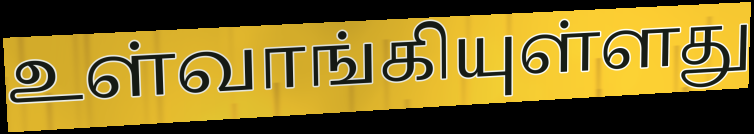
உள்வாங்கியுள்ளது